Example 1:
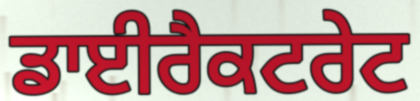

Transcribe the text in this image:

ਡਾਈਰੈਕਟਰੇਟ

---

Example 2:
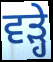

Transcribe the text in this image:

ਵੜ੍ਹੇ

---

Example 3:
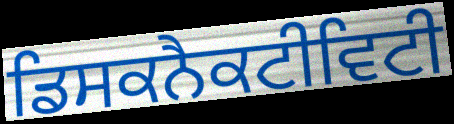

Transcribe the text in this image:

ਡਿਸਕਨੈਕਟੀਵਿਟੀ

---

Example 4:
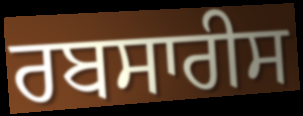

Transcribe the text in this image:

ਰਬਸਾਰੀਸ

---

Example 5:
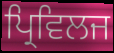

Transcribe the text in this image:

ਪ੍ਰਿਵਿਲਜ